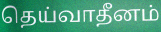
தெய்வாதீனம்